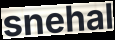
snehal